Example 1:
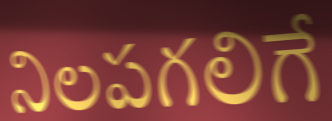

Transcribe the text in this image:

నిలపగలిగే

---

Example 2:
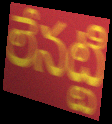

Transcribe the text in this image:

లేనట్టి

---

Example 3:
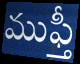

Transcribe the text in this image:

ముఫ్తీ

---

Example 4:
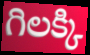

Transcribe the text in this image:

గిలక్కి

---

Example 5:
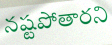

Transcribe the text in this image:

నష్టపోతారని